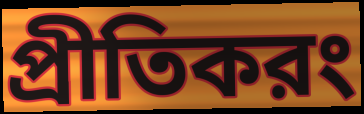
প্রীতিকরং